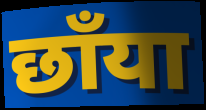
छाँया